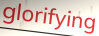
glorifying